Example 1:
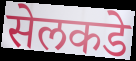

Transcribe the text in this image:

सेलकडे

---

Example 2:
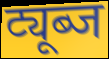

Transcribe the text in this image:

ट्यूब्ज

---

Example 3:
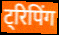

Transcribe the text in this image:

ट्रिपिंग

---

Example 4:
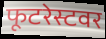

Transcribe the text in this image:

फूटरेस्टवर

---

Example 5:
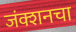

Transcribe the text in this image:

जंक्‍शनचा